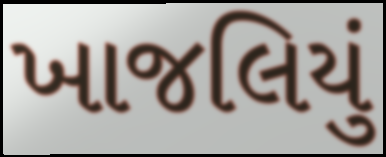
ખાજલિયું